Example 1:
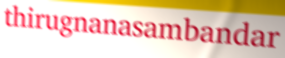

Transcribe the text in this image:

thirugnanasambandar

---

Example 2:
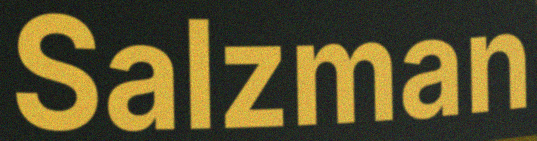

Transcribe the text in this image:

Salzman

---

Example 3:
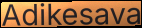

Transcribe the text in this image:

Adikesava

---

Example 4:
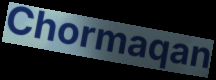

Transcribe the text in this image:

Chormaqan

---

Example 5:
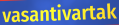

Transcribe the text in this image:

vasantivartak